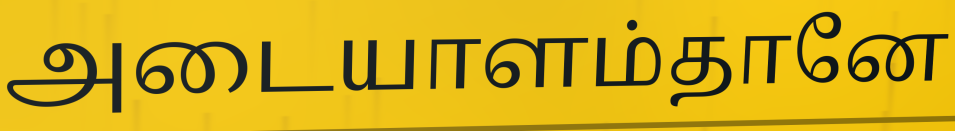
அடையாளம்தானே